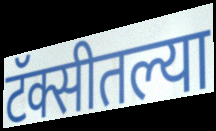
टॅक्सीतल्या